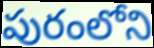
పురంలోని